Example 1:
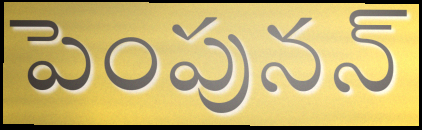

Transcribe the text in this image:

పెంపునన్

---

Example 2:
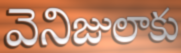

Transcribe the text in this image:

వెనిజులాకు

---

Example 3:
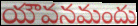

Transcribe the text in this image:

యౌవనమందు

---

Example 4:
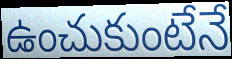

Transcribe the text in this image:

ఉంచుకుంటేనే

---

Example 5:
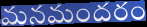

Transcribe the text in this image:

మనమందరం